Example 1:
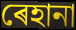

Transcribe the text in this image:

ৰেহানা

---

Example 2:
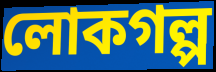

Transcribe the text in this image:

লোকগল্প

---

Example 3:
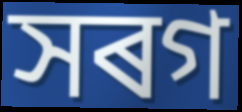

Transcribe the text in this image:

সৰগ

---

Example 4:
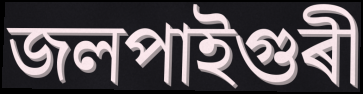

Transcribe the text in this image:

জলপাইগুৰী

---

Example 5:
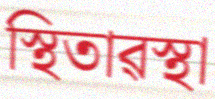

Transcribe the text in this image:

স্থিতাৱস্থা